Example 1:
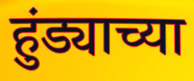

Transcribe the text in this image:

हुंड्याच्या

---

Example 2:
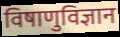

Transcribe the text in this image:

विषाणुविज्ञान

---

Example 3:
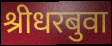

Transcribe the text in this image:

श्रीधरबुवा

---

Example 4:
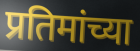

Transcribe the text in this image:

प्रतिमांच्या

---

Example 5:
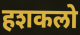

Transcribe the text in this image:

हशकलो